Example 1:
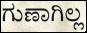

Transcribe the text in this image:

ಗುಣಾಗಿಲ್ಲ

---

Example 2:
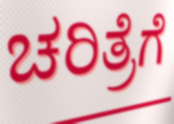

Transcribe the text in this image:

ಚರಿತ್ರೆಗೆ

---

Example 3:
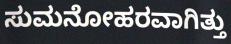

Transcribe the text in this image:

ಸುಮನೋಹರವಾಗಿತ್ತು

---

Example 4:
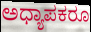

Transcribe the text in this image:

ಅಧ್ಯಾಪಕರೂ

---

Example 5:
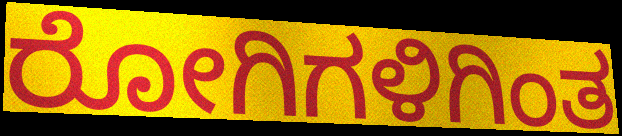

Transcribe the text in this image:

ರೋಗಿಗಳಿಗಿಂತ